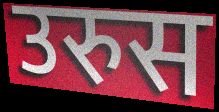
उरुस